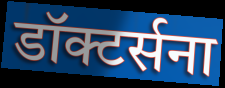
डॉक्टर्सना